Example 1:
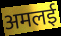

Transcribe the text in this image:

अमलई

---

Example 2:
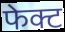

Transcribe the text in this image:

फेक्ट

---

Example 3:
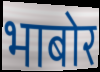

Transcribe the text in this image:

भाबोर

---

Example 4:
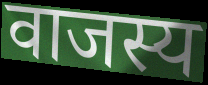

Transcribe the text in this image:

वाजस्य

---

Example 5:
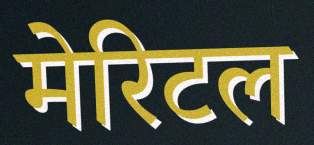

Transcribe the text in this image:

मेरिटल